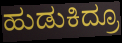
ಹುಡುಕಿದ್ರೂ